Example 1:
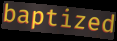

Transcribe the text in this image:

baptized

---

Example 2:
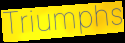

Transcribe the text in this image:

Triumphs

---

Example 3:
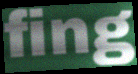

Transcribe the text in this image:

fing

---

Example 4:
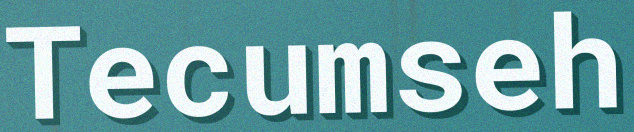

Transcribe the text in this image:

Tecumseh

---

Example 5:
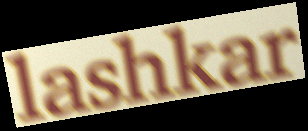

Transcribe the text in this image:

lashkar